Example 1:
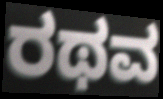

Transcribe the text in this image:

ರಥವ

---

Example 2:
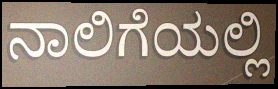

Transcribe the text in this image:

ನಾಲಿಗೆಯಲ್ಲಿ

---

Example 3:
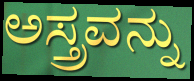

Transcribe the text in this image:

ಅಸ್ತ್ರವನ್ನು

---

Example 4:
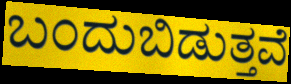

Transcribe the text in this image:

ಬಂದುಬಿಡುತ್ತವೆ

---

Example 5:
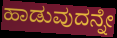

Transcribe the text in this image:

ಹಾಡುವುದನ್ನೇ